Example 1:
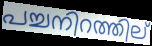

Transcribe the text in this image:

പച്ചനിറത്തില്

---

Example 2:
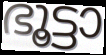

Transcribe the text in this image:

ഭൂട്ടാ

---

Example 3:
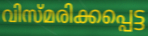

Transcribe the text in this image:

വിസ്മരിക്കപ്പെട്ട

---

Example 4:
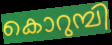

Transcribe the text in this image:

കൊറുമ്പി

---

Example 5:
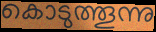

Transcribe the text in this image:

കൊടുത്തൂന്നു